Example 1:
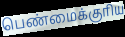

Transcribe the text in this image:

பெண்மைக்குரிய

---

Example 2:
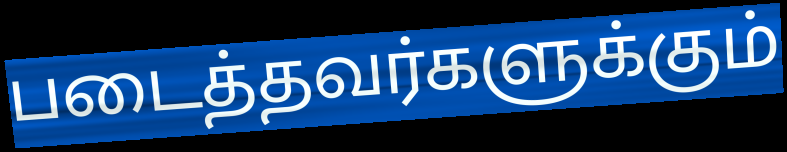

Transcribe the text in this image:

படைத்தவர்களுக்கும்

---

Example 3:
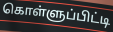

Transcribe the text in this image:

கொள்ளுப்பிட்டி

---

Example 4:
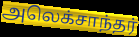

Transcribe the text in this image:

அலெக்சாந்தர்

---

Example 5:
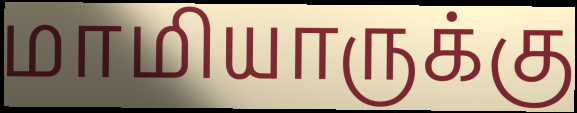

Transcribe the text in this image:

மாமியாருக்கு